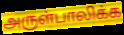
அருள்பாலிக்க